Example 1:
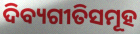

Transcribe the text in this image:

ଦିବ୍ୟଗୀତିସମୂହ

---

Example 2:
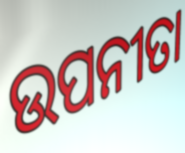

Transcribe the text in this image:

ଉପନୀତା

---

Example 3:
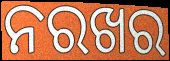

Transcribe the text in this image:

ନରଖର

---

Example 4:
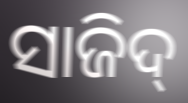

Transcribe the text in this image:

ସାଜିଦ୍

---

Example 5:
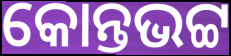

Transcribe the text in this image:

କୋନ୍ତଭଟ୍ଟ